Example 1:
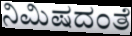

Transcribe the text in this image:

ನಿಮಿಷದಂತೆ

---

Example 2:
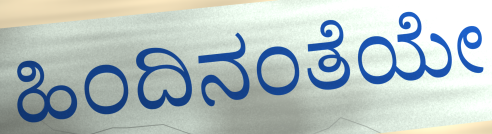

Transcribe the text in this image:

ಹಿಂದಿನಂತೆಯೇ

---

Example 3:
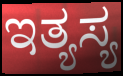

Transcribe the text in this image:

ಇತ್ಯಸ್ಯ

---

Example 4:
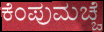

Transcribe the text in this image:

ಕೆಂಪುಮಚ್ಚೆ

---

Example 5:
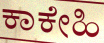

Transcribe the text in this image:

ಕಾಕೇಹಿ